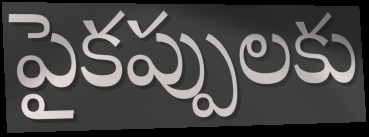
పైకప్పులకు